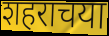
शहराचया